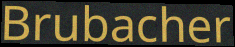
Brubacher